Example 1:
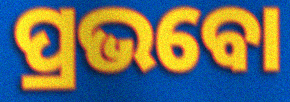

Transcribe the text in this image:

ପ୍ରଭବୋ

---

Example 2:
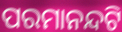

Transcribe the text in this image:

ପରମାନନ୍ଦଟି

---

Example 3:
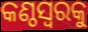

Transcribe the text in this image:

କଣ୍ଠସ୍ୱରକୁ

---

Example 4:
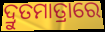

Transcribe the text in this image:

ଦ୍ରୁତମାତ୍ରାରେ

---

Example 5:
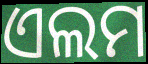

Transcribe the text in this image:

ଏଲମ